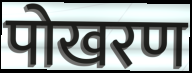
पोखरण